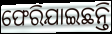
ଫେରିଯାଇଛନ୍ତି